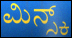
ಮಿನ್ಸ್ಕ್